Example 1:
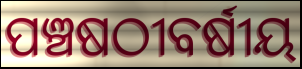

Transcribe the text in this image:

ପଞ୍ଚଷଠୀବର୍ଷୀୟ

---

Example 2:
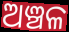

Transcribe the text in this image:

ଅଞ୍ଚଳ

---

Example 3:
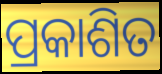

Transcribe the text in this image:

ପ୍ରକାଶିତ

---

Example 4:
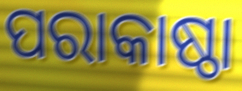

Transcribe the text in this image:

ପରାକାଷ୍ଠା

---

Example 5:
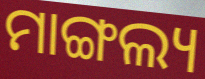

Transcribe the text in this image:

ମାଙ୍ଗଲ୍ୟ